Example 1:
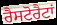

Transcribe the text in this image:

ਰੈਸਟੋਰੈਟਾਂ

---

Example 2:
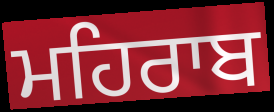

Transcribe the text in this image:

ਮਹਿਰਾਬ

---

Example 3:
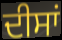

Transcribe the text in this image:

ਦੀਸਾਂ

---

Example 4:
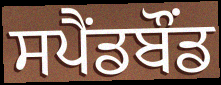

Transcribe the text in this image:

ਸਪੈਂਡਬੌਂਡ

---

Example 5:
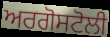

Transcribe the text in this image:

ਅਰਗੋਸਟੋਲੀ